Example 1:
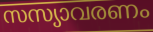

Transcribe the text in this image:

സസ്യാവരണം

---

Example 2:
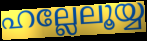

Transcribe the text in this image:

ഹല്ലേലൂയ്യ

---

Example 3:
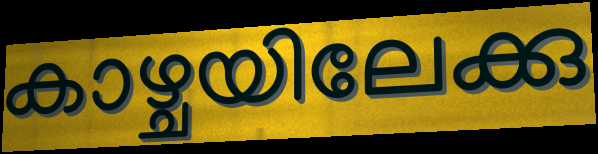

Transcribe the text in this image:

കാഴ്ചയിലേക്കു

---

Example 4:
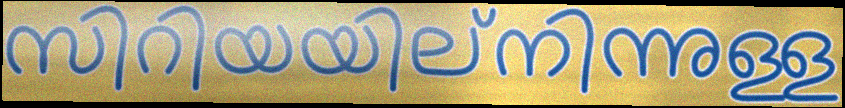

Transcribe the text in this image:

സിറിയയില്നിന്നുള്ള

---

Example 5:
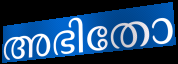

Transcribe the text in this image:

അഭിതോ